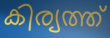
കിര്യത്ത്